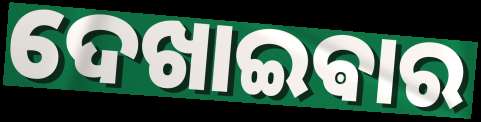
ଦେଖାଇଵାର